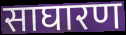
साघारण